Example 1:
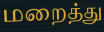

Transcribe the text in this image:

மறைத்து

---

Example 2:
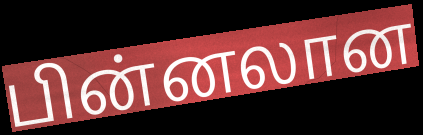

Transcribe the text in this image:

பின்னலான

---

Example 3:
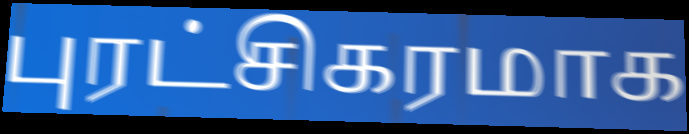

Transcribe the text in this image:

புரட்சிகரமாக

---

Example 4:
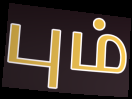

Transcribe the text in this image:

பும்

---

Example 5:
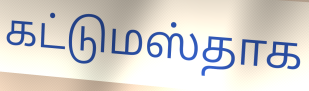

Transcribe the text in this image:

கட்டுமஸ்தாக